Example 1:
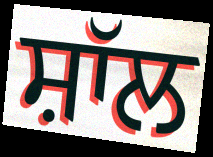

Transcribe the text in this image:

ਸ਼ਾੱਲ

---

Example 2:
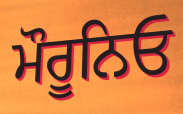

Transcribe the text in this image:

ਮੌਰੂਨਿਓ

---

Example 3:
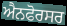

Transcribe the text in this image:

ਐਨਫੋਰਸਰ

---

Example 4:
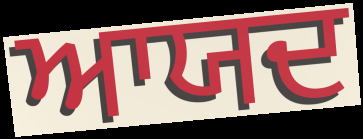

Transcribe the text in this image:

ਆਯਦ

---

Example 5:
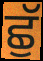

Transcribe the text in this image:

ਛੁੱ